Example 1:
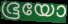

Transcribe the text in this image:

ഭൂയോ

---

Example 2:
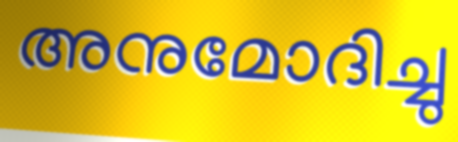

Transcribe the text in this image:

അനുമോദിച്ചു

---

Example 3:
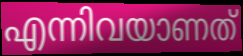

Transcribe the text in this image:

എന്നിവയാണത്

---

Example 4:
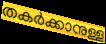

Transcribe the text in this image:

തകർക്കാനുള്ള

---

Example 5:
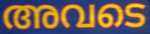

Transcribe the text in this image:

അവടെ